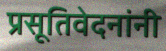
प्रसूतिवेदनांनी